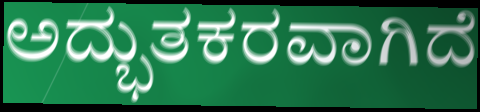
ಅದ್ಭುತಕರವಾಗಿದೆ